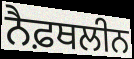
ਨੈਫ਼ਥਲੀਨ